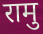
रामु